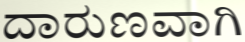
ದಾರುಣವಾಗಿ